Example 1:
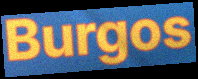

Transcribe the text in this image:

Burgos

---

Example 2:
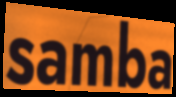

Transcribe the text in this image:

samba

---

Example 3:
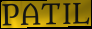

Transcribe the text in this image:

PATIL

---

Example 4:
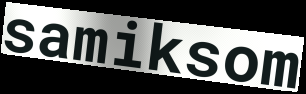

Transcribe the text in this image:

samiksom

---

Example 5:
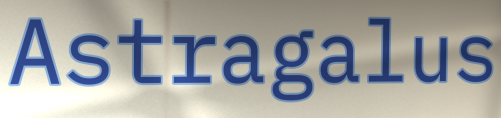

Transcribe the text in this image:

Astragalus